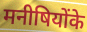
मनीषियोंके